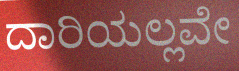
ದಾರಿಯಲ್ಲವೇ